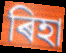
ৰিহা